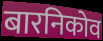
बारनिकोव